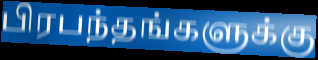
பிரபந்தங்களுக்கு